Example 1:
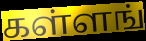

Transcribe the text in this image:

கள்ளங்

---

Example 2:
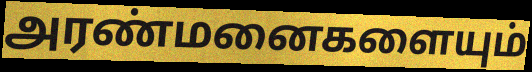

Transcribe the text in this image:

அரண்மனைகளையும்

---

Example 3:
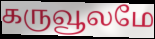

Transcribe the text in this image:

கருவூலமே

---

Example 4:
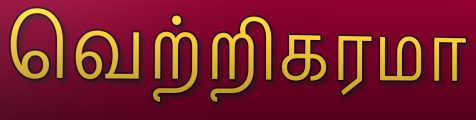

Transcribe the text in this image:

வெற்றிகரமா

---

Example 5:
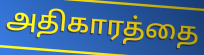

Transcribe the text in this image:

அதிகாரத்தை